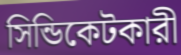
সিন্ডিকেটকারী